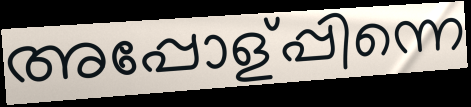
അപ്പോള്പ്പിന്നെ